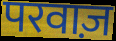
परवाज़